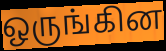
ஒருங்கின